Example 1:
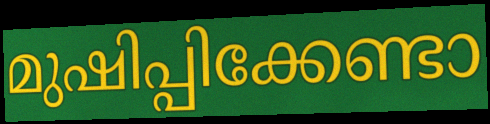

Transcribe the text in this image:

മുഷിപ്പിക്കേണ്ടാ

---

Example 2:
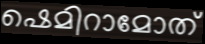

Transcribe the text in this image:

ഷെമിറാമോത്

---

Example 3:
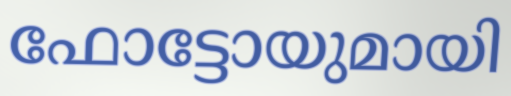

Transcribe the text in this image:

ഫോട്ടോയുമായി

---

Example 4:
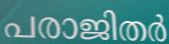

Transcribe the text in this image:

പരാജിതർ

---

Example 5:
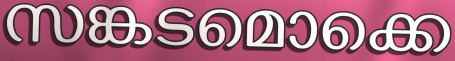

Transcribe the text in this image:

സങ്കടമൊക്കെ